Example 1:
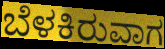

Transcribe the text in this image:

ಬೆಳಕಿರುವಾಗ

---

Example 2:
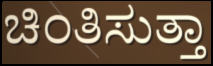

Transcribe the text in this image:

ಚಿಂತಿಸುತ್ತಾ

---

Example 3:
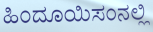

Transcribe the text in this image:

ಹಿಂದೂಯಿಸಂನಲ್ಲಿ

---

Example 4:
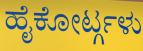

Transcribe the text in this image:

ಹೈಕೋರ್ಟ್ಗಳು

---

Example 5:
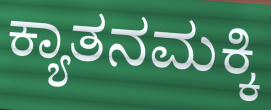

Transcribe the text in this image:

ಕ್ಯಾತನಮಕ್ಕಿ